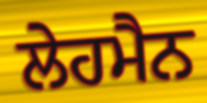
ਲੇਹਮੈਨ